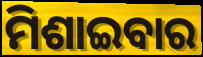
ମିଶାଇବାର